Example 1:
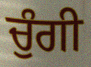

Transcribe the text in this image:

ਚੁੰਗੀ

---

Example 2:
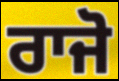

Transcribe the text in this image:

ਰਾਜੋ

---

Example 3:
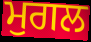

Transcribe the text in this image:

ਮੁਗਲ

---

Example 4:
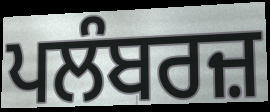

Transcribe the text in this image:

ਪਲੰਬਰਜ਼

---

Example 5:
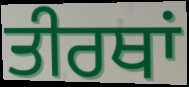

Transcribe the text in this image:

ਤੀਰਥਾਂ